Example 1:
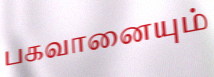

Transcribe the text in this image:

பகவானையும்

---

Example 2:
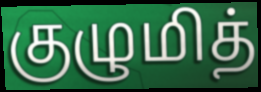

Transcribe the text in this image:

குழுமித்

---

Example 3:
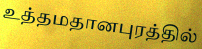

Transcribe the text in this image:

உத்தமதானபுரத்தில்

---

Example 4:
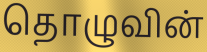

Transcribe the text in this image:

தொழுவின்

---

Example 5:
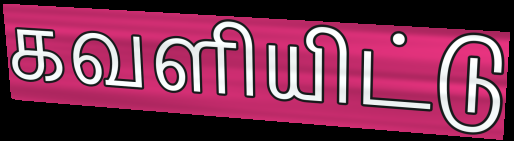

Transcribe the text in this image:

கவளியிட்டு